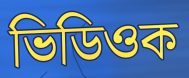
ভিডিওক